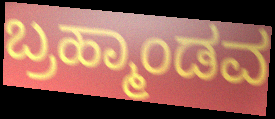
ಬ್ರಹ್ಮಾಂಡವ